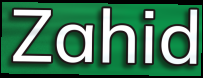
Zahid